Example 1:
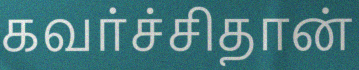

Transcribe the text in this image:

கவர்ச்சிதான்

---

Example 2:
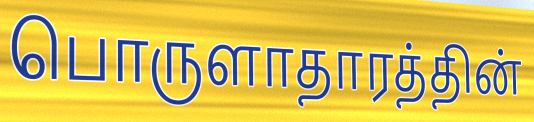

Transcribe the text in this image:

பொருளாதாரத்தின்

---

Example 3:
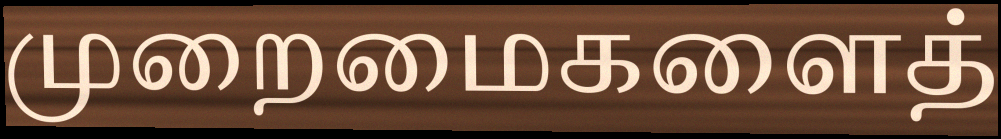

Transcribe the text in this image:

முறைமைகளைத்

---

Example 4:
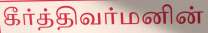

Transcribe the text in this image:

கீர்த்திவர்மனின்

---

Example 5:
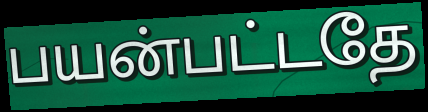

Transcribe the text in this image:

பயன்பட்டதே